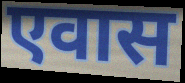
एवास